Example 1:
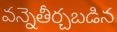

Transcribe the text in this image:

వన్నెతీర్చబడిన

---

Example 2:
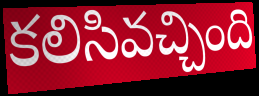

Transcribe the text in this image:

కలిసివచ్చింది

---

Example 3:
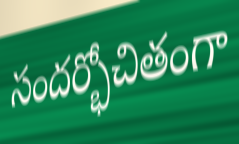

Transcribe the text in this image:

సందర్భోచితంగా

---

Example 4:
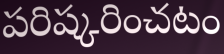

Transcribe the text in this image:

పరిష్కరించటం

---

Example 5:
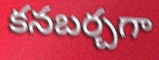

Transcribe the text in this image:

కనబర్చగా